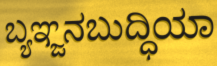
ಬ್ಯಞ್ಜನಬುದ್ಧಿಯಾ